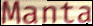
Manta